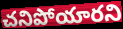
చనిపోయారని